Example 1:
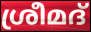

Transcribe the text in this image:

ശ്രീമദ്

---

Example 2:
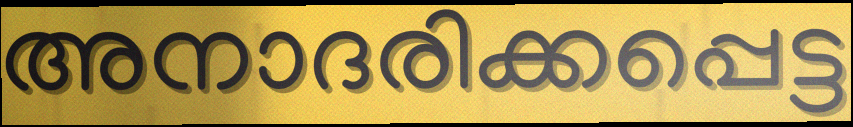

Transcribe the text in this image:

അനാദരിക്കപ്പെട്ട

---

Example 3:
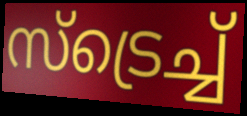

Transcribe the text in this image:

സ്ട്രെച്ച്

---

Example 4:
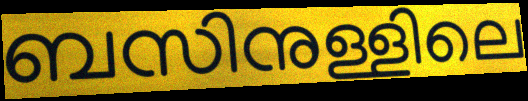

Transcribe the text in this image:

ബസിനുള്ളിലെ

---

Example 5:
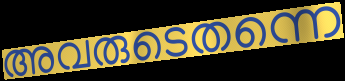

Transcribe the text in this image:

അവരുടെതന്നെ